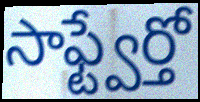
సాఫ్ట్వేర్తో